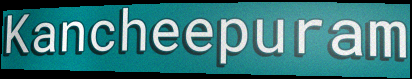
Kancheepuram